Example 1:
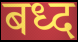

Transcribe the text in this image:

बध्द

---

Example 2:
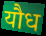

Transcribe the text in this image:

यौध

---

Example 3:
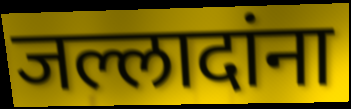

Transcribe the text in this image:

जल्लादांना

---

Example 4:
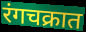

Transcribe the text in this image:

रंगचक्रात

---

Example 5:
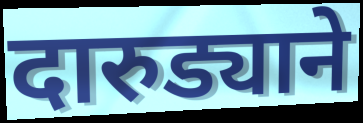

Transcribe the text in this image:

दारुड्याने